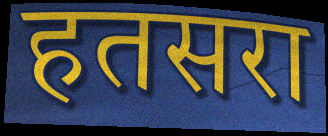
हतसरा